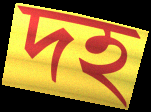
দহ